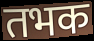
तभक